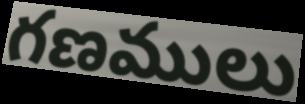
గణములు